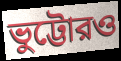
ভুট্টোরও